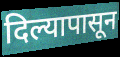
दिल्यापासून